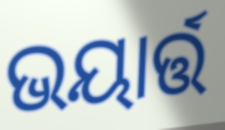
ଭୟାର୍ତ୍ତ